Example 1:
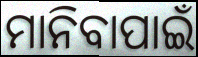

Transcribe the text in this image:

ମାନିବାପାଇଁ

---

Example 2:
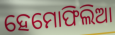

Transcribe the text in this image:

ହେମୋଫିଲିଆ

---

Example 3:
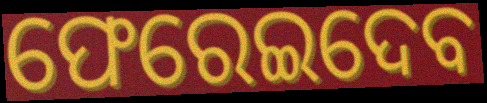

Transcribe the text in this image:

ଫେରେଇଦେବ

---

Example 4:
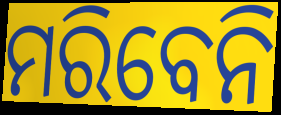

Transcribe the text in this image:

ମରିବେନି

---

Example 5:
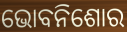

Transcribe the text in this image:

ଭୋବନିଶୋର